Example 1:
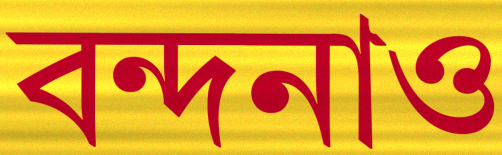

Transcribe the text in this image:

বন্দনাও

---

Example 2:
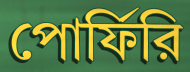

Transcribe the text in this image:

পোর্ফিরি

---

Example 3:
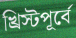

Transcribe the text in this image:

খ্রিস্টপূর্বে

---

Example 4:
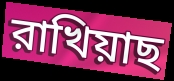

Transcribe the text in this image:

রাখিয়াছ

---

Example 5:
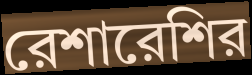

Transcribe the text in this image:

রেশারেশির